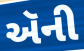
ઍની